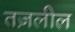
तज़लील